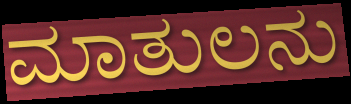
ಮಾತುಲನು